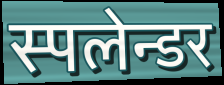
स्पलेन्डर